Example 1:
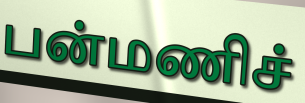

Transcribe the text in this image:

பன்மணிச்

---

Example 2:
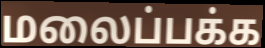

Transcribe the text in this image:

மலைப்பக்க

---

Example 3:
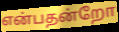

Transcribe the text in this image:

என்பதன்றோ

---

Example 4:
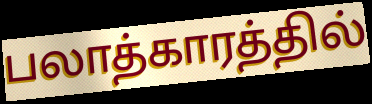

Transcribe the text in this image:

பலாத்காரத்தில்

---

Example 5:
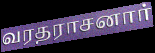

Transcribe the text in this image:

வரதராசனார்